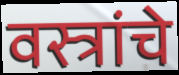
वस्त्रांचे